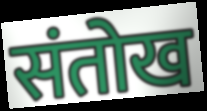
संतोख